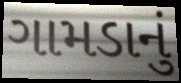
ગામડાનું